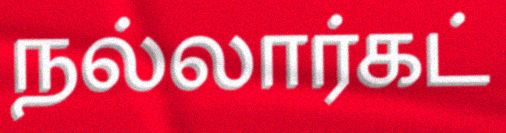
நல்லார்கட்